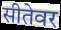
सीतेवर